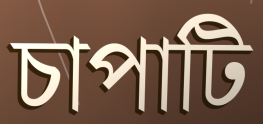
চাপাটি